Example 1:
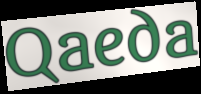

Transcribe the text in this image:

Qaeda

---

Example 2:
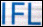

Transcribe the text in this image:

IFL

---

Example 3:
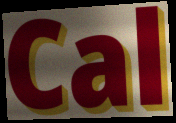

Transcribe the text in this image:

Cal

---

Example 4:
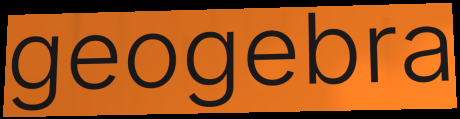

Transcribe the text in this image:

geogebra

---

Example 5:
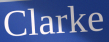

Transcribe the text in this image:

Clarke